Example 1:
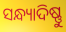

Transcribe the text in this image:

ସନ୍ଧ୍ୟାଦିଷ୍ଣୁ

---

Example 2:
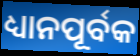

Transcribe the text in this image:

ଧ୍ୟାନପୂର୍ବକ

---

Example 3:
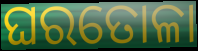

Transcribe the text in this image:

ଘରତୋଳା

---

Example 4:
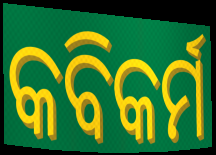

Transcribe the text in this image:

କବିକର୍ମ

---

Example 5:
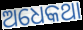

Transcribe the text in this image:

ଅଧେକଥା